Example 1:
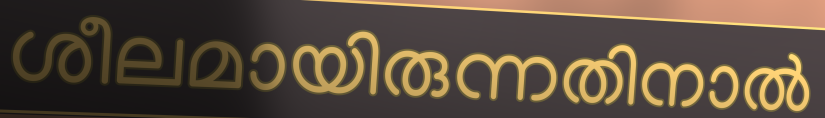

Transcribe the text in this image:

ശീലമായിരുന്നതിനാൽ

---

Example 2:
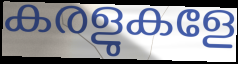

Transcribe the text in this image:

കരളുകളേ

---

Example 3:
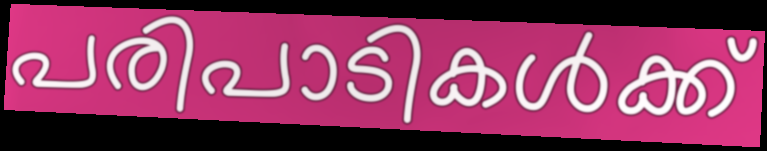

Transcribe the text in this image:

പരിപാടികൾക്ക്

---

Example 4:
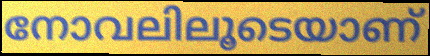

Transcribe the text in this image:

നോവലിലൂടെയാണ്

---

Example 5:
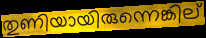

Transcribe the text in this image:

തുണിയായിരുന്നെങ്കില്